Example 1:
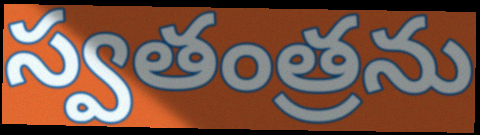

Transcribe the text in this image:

స్వతంత్రను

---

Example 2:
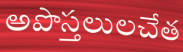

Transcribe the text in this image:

అపొస్తలులచేత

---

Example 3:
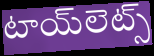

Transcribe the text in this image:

టాయ్‌లెట్స్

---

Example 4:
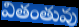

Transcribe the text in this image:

వితంతువు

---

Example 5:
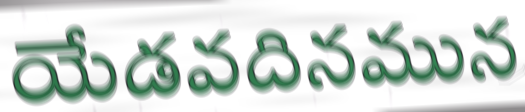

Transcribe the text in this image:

యేడవదినమున